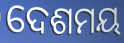
ଦେଶମୟ